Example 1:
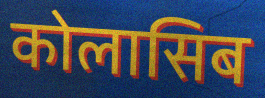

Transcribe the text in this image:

कोलासिब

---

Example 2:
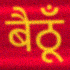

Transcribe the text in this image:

बैठूँ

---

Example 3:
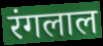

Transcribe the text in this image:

रंगलाल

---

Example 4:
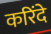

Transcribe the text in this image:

करिंदे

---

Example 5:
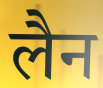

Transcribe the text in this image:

लैन